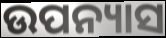
ଉପନ୍ୟାସ